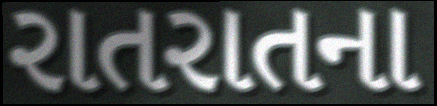
રાતરાતના